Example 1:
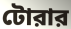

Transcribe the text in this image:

টোরার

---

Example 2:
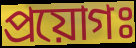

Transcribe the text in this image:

প্রয়োগঃ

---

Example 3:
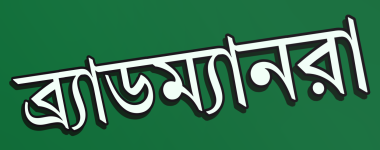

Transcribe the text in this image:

ব্র্যাডম্যানরা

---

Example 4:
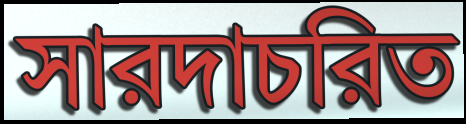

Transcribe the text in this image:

সারদাচরিত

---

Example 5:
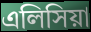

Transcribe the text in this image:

এলিসিয়া